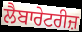
ਲੈਬਾਰੇਟਰੀਜ਼